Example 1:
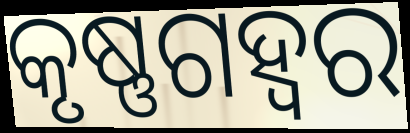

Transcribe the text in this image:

କୃଷ୍ଣଗହ୍ୱର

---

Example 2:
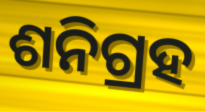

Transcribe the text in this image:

ଶନିଗ୍ରହ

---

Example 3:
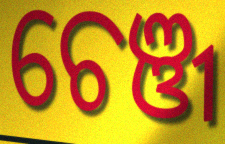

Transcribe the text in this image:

ଚେଞ୍ଜ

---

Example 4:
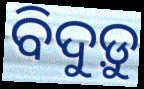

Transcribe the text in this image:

ବିଦୁଡ଼ୁ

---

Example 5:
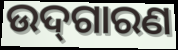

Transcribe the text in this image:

ଉଦ୍‌ଗାରଣ